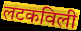
लटकविली